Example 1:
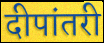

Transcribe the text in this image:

दीपांतरी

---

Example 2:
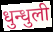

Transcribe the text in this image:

धुन्धुली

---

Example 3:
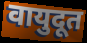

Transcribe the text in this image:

वायुदूत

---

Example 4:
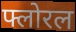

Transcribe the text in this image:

फ्लोरल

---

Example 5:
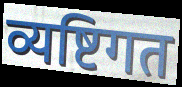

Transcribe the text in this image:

व्यष्टिगत